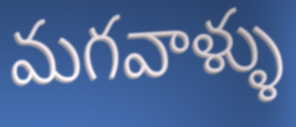
మగవాళ్ళు